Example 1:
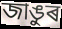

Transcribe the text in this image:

জাঙুৰ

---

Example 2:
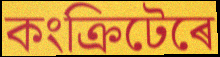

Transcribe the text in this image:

কংক্ৰিটেৰে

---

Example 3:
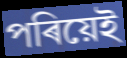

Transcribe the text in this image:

পৰিয়েই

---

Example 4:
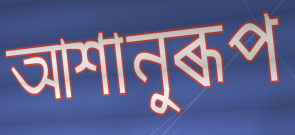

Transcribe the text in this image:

আশানুৰূপ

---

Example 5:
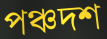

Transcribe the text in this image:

পঞ্চদশ